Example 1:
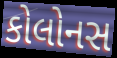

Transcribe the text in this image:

કોલોનસ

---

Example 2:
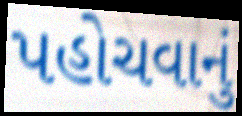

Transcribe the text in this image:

પહોચવાનું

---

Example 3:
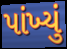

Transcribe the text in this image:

પાંખ્યું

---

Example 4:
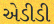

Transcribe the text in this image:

એડીડી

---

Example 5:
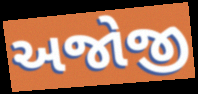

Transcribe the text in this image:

અજોજી